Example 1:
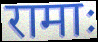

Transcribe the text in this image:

रामाः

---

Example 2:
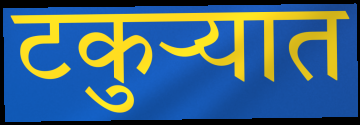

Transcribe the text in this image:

टकुर्‍यात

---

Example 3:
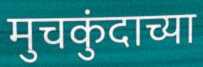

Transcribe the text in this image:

मुचकुंदाच्या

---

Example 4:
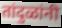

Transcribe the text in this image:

तांदुळांनी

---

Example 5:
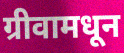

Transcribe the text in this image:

ग्रीवामधून